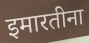
इमारतीना